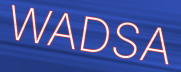
WADSA